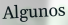
Algunos